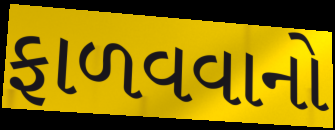
ફાળવવાનો